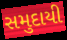
સમુદાયી